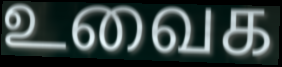
உவைக